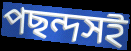
পছন্দসই